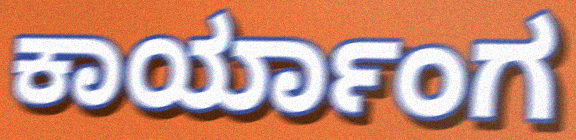
ಕಾರ್ಯಾಂಗ